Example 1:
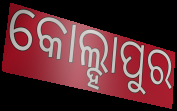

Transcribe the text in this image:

କୋଲ୍ହାପୁର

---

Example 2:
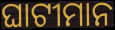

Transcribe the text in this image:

ଘାଟୀମାନ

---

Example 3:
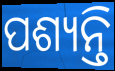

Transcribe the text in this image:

ପଶ୍ୟନ୍ତି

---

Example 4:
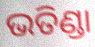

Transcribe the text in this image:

ଭତିଣ୍ଡା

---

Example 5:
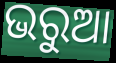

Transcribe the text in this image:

ଭରୁଆ